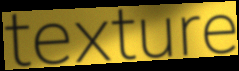
texture